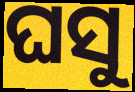
ଘସୁ